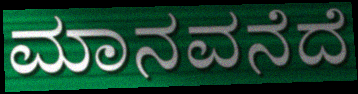
ಮಾನವನೆದೆ